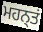
ਮਹਨ੍ਤਂ